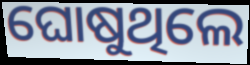
ଘୋଷୁଥିଲେ